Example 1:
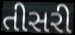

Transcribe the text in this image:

તીસરી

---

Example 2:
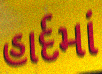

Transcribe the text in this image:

હાર્દમાં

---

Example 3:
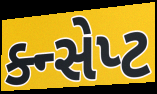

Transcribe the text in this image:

ક્ન્સેપ્ટ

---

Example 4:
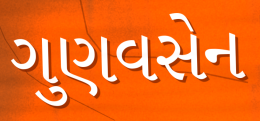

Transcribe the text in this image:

ગુણવસેન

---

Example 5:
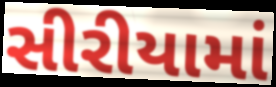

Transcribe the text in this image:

સીરીયામાં